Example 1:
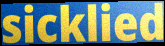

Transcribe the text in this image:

sicklied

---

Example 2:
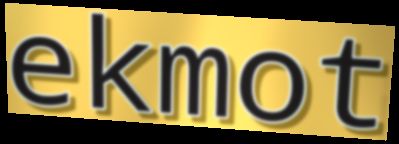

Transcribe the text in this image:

ekmot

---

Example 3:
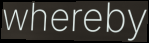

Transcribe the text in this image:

whereby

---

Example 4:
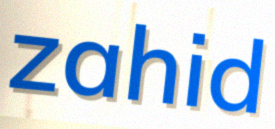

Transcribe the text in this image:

zahid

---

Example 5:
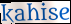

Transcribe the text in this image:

kahise